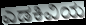
ಎಡಕಿವಿಯ